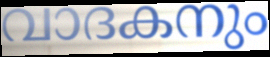
വാദകനും